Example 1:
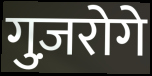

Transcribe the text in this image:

गुज़रोगे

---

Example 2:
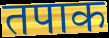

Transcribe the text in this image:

तपाक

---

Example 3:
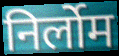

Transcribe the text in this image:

निर्लोम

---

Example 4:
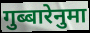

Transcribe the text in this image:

गुब्बारेनुमा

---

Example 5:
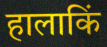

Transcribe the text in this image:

हालाकिं